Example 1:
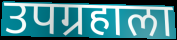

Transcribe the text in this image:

उपग्रहाला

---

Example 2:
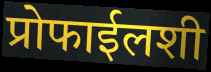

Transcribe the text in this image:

प्रोफाईलशी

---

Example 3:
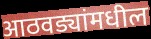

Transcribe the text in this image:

आठवड्यांमधील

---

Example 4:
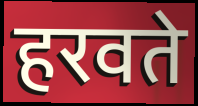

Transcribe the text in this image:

हरवते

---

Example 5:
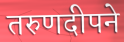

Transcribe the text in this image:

तरुणदीपने